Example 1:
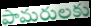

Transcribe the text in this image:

పామరులకు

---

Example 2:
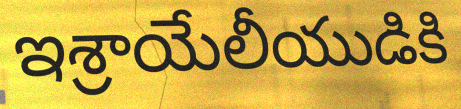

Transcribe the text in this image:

ఇశ్రాయేలీయుడికి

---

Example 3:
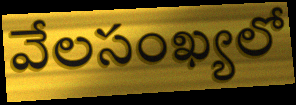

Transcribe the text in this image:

వేలసంఖ్యలో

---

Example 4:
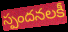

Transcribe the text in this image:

స్పందనలకీ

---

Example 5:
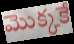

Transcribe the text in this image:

మొక్కకే